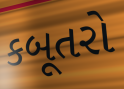
કબૂતરો